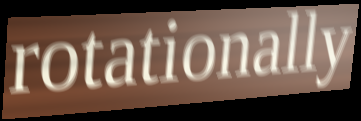
rotationally